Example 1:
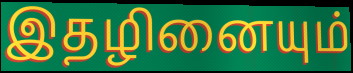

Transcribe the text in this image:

இதழினையும்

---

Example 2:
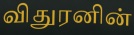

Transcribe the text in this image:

விதுரனின்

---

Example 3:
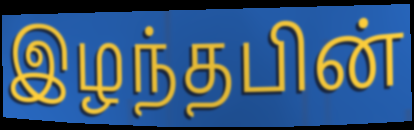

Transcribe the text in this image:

இழந்தபின்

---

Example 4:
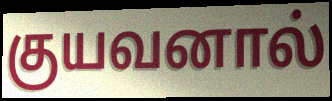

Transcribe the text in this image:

குயவனால்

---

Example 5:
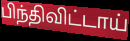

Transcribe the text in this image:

பிந்திவிட்டாய்